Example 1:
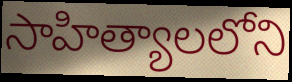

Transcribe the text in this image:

సాహిత్యాలలోని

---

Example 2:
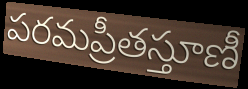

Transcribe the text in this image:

పరమప్రీతస్తూణీ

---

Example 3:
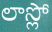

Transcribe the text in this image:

లాస్లో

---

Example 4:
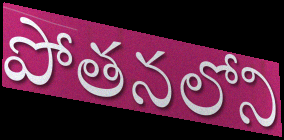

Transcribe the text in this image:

పోతనలోని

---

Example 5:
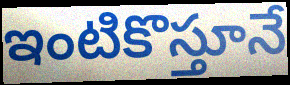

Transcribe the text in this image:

ఇంటికొస్తూనే